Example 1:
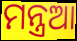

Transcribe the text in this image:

ମନ୍ତ୍ରଆ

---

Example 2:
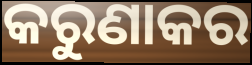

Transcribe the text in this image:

କରୁଣାକର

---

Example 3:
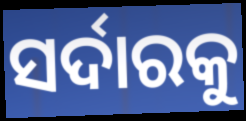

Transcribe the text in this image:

ସର୍ଦାରକୁ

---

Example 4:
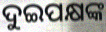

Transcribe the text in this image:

ଦୁଇପକ୍ଷଙ୍କ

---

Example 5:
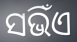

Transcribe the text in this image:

ସଭିଁଏ